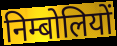
निम्बोलियों